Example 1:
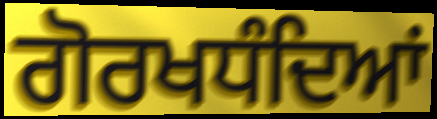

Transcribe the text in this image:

ਗੋਰਖਧੰਦਿਆਂ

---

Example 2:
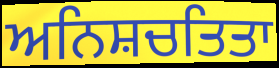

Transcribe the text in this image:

ਅਨਿਸ਼ਚਤਿਤਾ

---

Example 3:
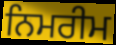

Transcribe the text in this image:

ਨਿਮਰੀਮ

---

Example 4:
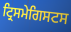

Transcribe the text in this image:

ਟ੍ਰਿਸਮੇਗਿਸਟਸ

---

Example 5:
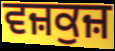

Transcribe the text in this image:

ਵਜ਼ਕੁਜ਼